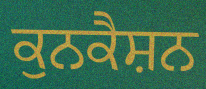
ਕੁਨਕੈਸ਼ਨ